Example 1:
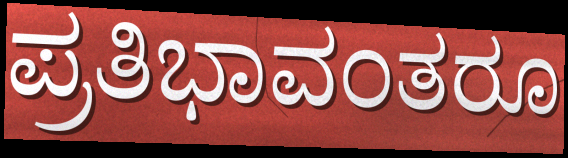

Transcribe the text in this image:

ಪ್ರತಿಭಾವಂತರೂ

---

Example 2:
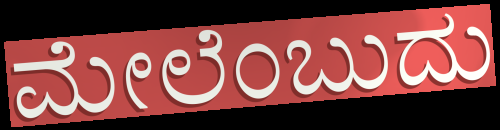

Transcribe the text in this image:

ಮೇಲೆಂಬುದು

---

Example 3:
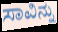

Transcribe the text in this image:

ಸಾವಿನ್ನು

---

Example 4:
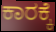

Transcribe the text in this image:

ಕಾರಕ್ಕೆ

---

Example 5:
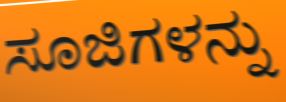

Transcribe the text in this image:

ಸೂಜಿಗಳನ್ನು